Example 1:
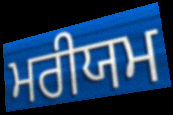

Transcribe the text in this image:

ਮਰੀਯਮ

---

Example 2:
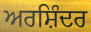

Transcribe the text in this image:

ਅਰਸ਼ਿੰਦਰ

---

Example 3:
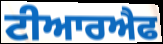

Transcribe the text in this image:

ਟੀਆਰਐਫ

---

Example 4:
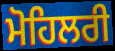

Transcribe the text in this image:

ਮੋਹਿਲਰੀ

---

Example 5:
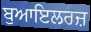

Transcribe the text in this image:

ਬੁਆਇਲਰਜ਼